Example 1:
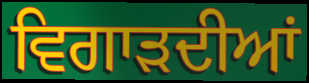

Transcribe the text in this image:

ਵਿਗਾੜਦੀਆਂ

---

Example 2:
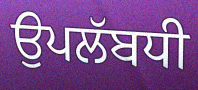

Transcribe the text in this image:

ਉਪਲੱਬਧੀ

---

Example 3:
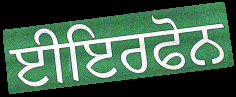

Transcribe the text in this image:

ਈਇਰਫੋਨ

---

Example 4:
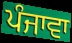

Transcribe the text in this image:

ਪੰਜਾਵਾ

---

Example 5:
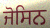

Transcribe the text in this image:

ਜੋਸਿਨ